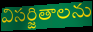
విసర్జితాలను